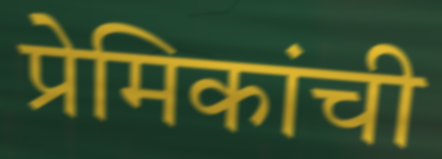
प्रेमिकांची